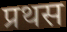
प्रथस